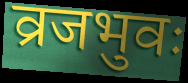
व्रजभुवः